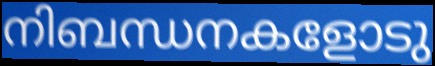
നിബന്ധനകളോടു